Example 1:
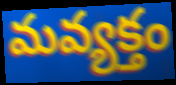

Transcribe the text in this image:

మవ్యక్తం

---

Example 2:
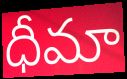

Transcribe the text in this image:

ధీమా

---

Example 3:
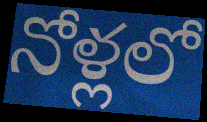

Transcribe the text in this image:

నోళ్లలో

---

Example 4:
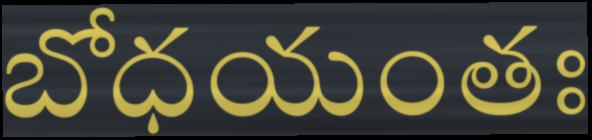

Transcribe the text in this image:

బోధయంతః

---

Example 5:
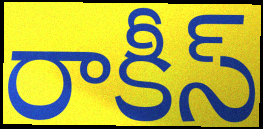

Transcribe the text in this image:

రాకీస్